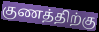
குணத்திற்கு